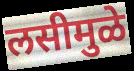
लसीमुळे